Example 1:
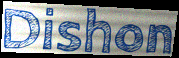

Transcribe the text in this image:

Dishon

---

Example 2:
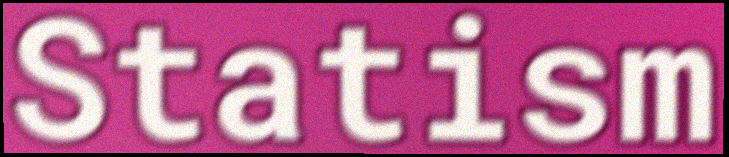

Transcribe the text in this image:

Statism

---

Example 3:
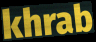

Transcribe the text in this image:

khrab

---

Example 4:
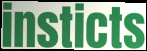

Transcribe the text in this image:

insticts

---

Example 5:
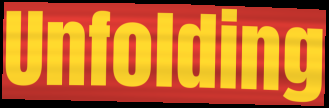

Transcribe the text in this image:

Unfolding